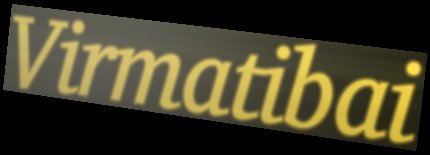
Virmatibai